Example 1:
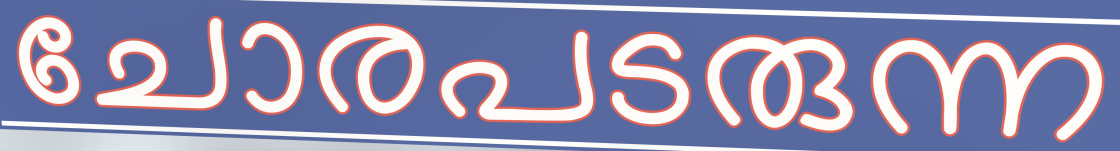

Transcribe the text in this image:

ചോരപടരുന്ന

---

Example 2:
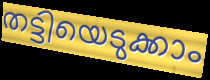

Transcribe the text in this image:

തട്ടിയെടുക്കാം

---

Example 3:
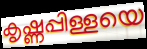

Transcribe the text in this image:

കൃഷ്ണപ്പിള്ളയെ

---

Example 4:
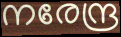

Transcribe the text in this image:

നരേന്ദ്ര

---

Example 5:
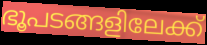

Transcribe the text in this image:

ഭൂപടങ്ങളിലേക്ക്